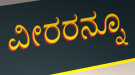
ವೀರರನ್ನೂ